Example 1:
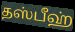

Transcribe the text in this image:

தஸ்பீஹ்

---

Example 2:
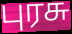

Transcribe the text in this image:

புரசு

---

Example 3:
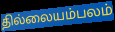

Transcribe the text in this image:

தில்லையம்பலம்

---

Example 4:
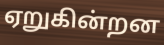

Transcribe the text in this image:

ஏறுகின்றன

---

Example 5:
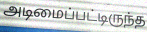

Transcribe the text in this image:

அடிமைப்பட்டிருந்த